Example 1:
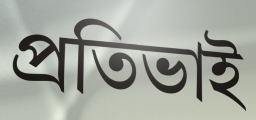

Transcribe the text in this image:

প্ৰতিভাই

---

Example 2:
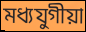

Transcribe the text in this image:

মধ্যযুগীয়া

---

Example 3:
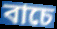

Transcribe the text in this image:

বাচে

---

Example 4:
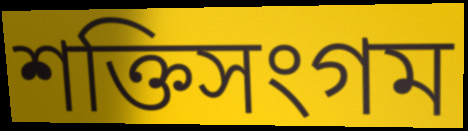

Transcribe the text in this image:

শক্তিসংগম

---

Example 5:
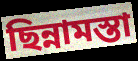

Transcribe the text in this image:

ছিন্নামস্তা